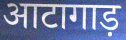
आटागाड़